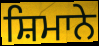
ਸ਼ਿਮਾਨੇ